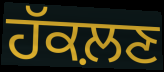
ਹੱਕਲ਼ਣ